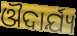
ଔଦାର୍ଯ୍ୟ